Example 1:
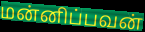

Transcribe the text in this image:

மன்னிப்பவன்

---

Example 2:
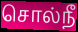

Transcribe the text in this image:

சொல்நீ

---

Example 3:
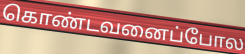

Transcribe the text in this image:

கொண்டவனைப்போல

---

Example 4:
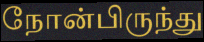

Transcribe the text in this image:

நோன்பிருந்து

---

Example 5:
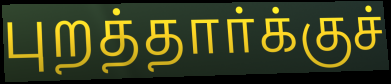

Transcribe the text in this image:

புறத்தார்க்குச்